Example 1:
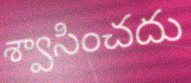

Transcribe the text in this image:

శ్వాసించదు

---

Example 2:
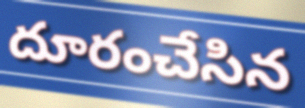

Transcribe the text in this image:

దూరంచేసిన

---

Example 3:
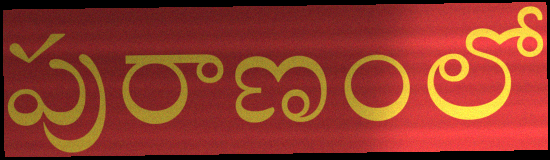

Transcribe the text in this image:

పురాణంలో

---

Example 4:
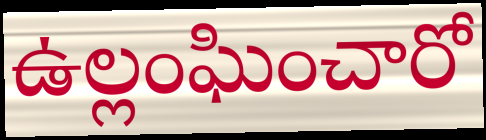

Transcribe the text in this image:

ఉల్లంఘించారో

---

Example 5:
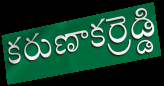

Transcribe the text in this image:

కరుణాకర్రెడ్డి